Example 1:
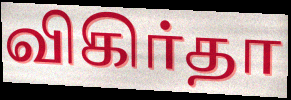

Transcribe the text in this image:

விகிர்தா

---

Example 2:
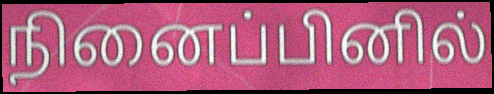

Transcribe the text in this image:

நினைப்பினில்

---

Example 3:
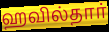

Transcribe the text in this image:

ஹவில்தார்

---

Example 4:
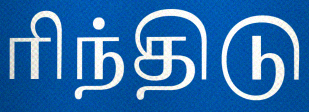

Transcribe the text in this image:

ரிந்திடு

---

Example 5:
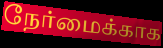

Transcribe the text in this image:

நேர்மைக்காக